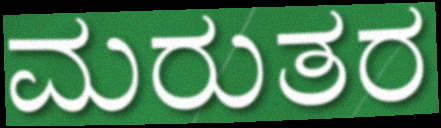
ಮರುತರ